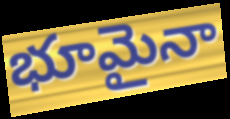
భూమైనా